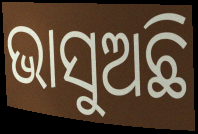
ଭାସୁଅଛି